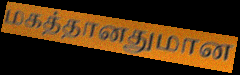
மகத்தானதுமான